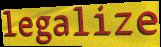
legalize